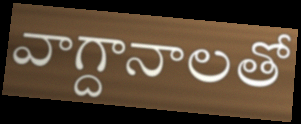
వాగ్దానాలతో